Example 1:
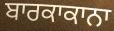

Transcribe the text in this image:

ਬਾਰਕਾਕਾਨਾ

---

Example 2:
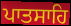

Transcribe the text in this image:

ਪਾਤਸਾਹਿ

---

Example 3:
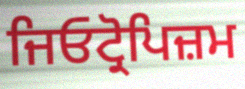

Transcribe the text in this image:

ਜਿਓਟ੍ਰੋਪਿਜ਼ਮ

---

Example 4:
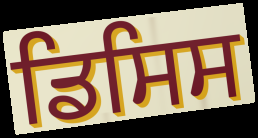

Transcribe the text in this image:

ਡਿਸਿਸ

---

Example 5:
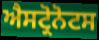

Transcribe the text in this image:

ਐਸਟ੍ਰੋਨੋਟਸ